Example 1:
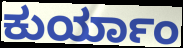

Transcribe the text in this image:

ಕುರ್ಯಾಂ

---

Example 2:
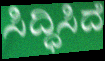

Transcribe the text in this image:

ಸಿದ್ಧಿಸಿದೆ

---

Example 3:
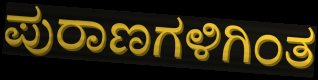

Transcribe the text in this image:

ಪುರಾಣಗಳಿಗಿಂತ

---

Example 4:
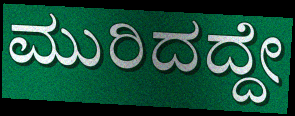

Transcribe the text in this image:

ಮುರಿದದ್ದೇ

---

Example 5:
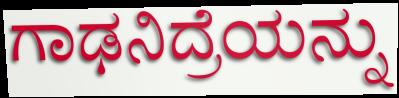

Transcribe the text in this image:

ಗಾಢನಿದ್ರೆಯನ್ನು